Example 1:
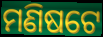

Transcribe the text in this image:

ମଣିଷଟେ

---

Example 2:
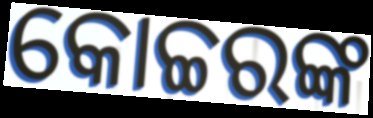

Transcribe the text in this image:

କୋଚ୍ଚରଙ୍କ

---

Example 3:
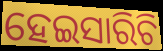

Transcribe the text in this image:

ହେଇସାରିଚି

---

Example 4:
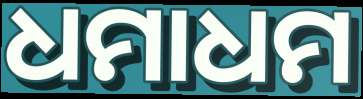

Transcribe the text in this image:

ଧମାଧମ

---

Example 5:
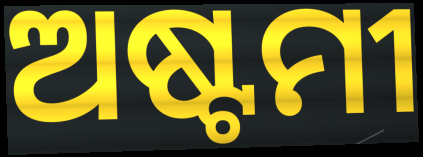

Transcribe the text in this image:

ଅଷ୍ଟମୀ